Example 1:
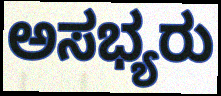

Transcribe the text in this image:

ಅಸಭ್ಯರು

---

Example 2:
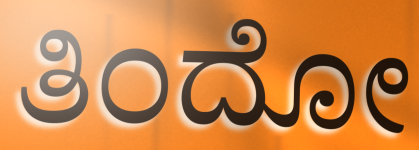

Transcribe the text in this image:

ತಿಂದೋ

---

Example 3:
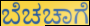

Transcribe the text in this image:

ಬೆಚಚಾಗೆ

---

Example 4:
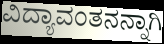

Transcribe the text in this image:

ವಿದ್ಯಾವಂತನನ್ನಾಗಿ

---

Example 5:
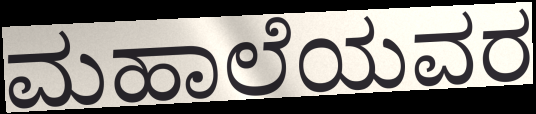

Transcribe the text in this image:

ಮಹಾಲೆಯವರ